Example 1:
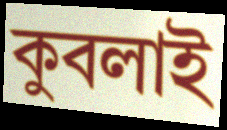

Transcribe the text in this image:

কুবলাই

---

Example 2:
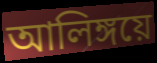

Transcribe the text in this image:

আলিঙ্গয়ে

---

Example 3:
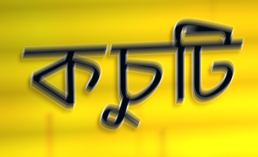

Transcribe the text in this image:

কচুটি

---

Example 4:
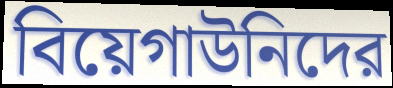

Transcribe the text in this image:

বিয়েগাউনিদের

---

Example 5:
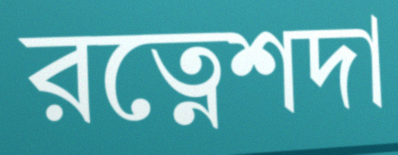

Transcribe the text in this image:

রত্নেশদা